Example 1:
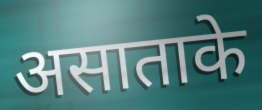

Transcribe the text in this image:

असाताके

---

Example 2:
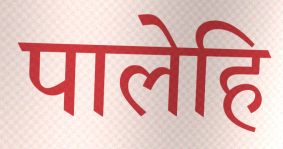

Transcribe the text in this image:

पालेहि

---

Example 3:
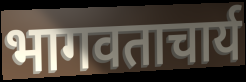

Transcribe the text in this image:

भागवताचार्य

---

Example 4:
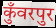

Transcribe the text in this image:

कुँवरपुर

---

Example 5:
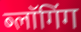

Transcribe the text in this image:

ब्‍लॉगिंग